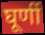
घूर्णी